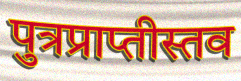
पुत्रप्राप्तीस्तव